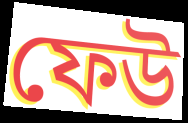
ফেউ